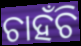
ଚାହଁଚି